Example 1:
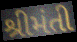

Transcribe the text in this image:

શ્રીમંતી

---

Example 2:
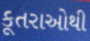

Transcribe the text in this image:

કૂતરાઓથી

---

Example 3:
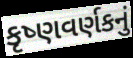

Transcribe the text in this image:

કૃષ્ણવર્ણકનું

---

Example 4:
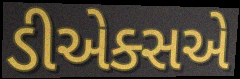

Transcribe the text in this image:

ડીએક્સએ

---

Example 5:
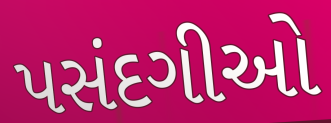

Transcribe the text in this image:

પસંદગીઓ